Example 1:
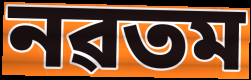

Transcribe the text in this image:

নৱতম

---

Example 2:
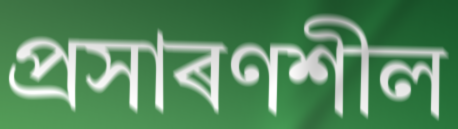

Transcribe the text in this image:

প্ৰসাৰণশীল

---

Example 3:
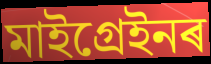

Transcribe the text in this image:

মাইগ্ৰেইনৰ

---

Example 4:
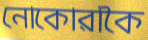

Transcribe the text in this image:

নোকোৱাকৈ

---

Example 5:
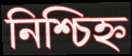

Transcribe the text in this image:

নিশ্চিহ্ন